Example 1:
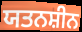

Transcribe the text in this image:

ਯਤਨਸ਼ੀਨ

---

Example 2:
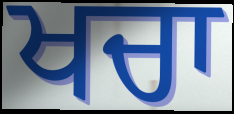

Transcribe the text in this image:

ਖਚਾ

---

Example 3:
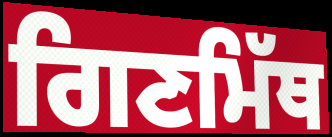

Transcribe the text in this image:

ਗਿਣਮਿੱਥ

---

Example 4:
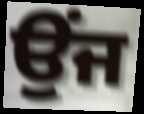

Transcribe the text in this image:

ਉੰਜ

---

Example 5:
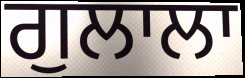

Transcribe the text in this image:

ਗੁਲਾਲਾ